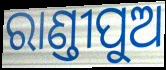
ରାଣ୍ଡୀପୁଅ